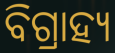
ବିଗ୍ରାହ୍ୟ